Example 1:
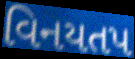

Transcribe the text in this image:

વિનયતપ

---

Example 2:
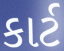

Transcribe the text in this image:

કાર્ટ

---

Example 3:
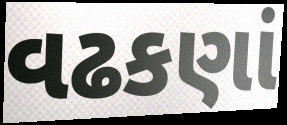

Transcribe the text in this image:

વઢકણાં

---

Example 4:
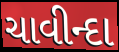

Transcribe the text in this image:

ચાવીન્દા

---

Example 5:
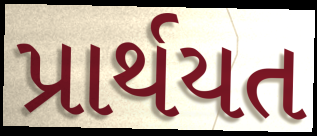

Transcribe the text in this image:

પ્રાર્થયત